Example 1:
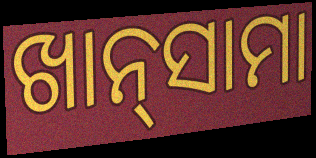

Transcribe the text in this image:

ଖାନ୍‍ସାମା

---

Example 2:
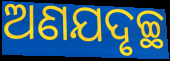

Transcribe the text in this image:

ଅଣଯଦୃଚ୍ଛ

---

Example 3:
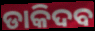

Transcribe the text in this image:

ଡାକିଦବ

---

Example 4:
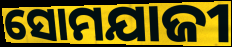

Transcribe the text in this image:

ସୋମଯାଜୀ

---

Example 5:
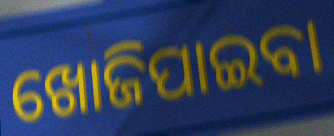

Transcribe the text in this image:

ଖୋଜିପାଇବା